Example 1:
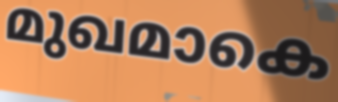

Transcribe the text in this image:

മുഖമാകെ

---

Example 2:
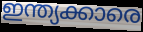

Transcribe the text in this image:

ഇന്ത്യക്കാരെ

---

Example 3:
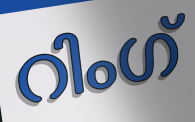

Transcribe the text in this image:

റിംഗ്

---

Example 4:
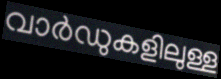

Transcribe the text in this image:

വാർഡുകളിലുള്ള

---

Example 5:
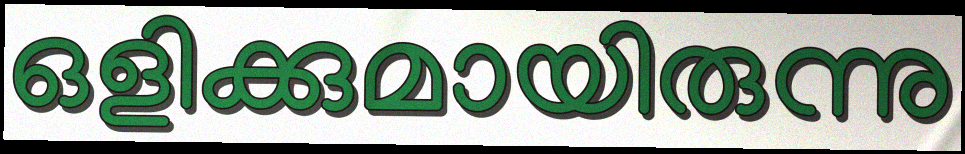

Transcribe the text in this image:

ഒളിക്കുമായിരുന്നു